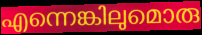
എന്നെങ്കിലുമൊരു